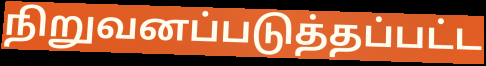
நிறுவனப்படுத்தப்பட்ட